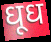
धूध